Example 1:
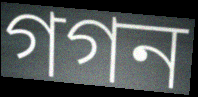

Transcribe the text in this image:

গগন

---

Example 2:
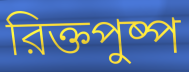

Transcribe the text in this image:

রিক্তপুষ্প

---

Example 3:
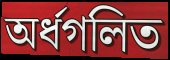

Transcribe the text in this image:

অর্ধগলিত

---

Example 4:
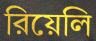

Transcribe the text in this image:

রিয়েলি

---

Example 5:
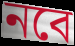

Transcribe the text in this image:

নবে